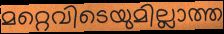
മറ്റെവിടെയുമില്ലാത്ത